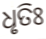
ଧୃତିଃ